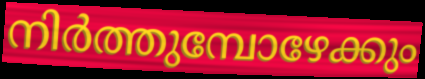
നിർത്തുമ്പോഴേക്കും